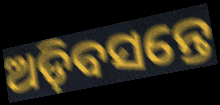
ଅଡ଼ିବସନ୍ତେ